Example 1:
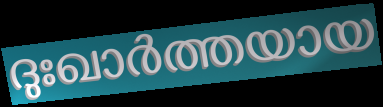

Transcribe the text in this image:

ദുഃഖാർത്തയായ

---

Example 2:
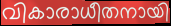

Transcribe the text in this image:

വികാരാധീതനായി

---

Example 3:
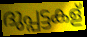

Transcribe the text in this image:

ദുപ്പട്ടകള്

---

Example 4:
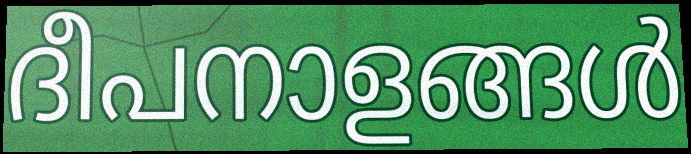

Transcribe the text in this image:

ദീപനാളങ്ങൾ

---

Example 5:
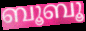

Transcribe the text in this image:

ബൂബൂ